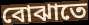
বোঝাতে